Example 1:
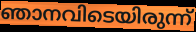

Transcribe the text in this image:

ഞാനവിടെയിരുന്ന്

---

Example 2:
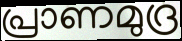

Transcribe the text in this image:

പ്രാണമുദ്ര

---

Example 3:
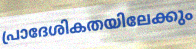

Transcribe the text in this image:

പ്രാദേശികതയിലേക്കും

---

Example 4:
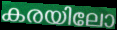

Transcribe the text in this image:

കരയിലോ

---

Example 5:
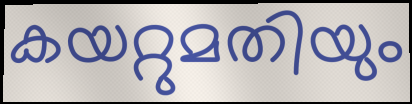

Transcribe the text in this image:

കയറ്റുമതിയും